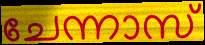
ചേന്നാസ്